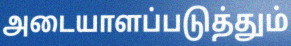
அடையாளப்படுத்தும்